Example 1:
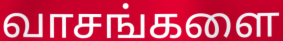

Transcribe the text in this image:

வாசங்களை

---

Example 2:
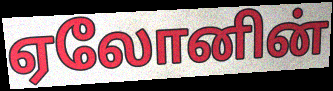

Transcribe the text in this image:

ஏலோனின்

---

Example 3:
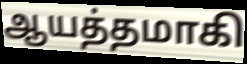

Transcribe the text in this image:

ஆயத்தமாகி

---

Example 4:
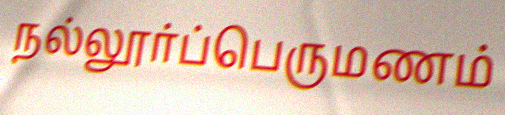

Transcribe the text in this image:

நல்லூர்ப்பெருமணம்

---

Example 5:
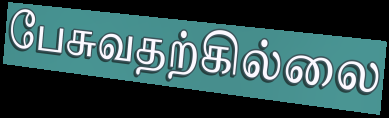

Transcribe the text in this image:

பேசுவதற்கில்லை